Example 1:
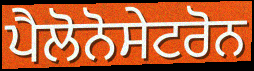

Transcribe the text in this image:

ਪੈਲੋਨੋਸੇਟਰੋਨ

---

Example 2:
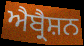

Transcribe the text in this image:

ਐਬ੍ਰੈਸ਼ਨ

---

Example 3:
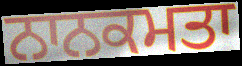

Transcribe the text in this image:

ਨਾਨਕਮਤਾ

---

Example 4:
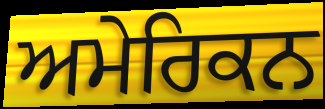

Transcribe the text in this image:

ਅਮੇਰਿਕਨ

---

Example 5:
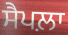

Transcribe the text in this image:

ਸੈਪਲ਼ਾ